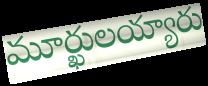
మూర్ఖులయ్యారు